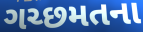
ગચ્છમતના